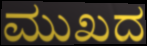
ಮುಖದ